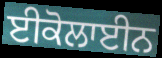
ਈਕੋਲਾਈਨ